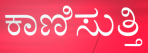
ಕಾಣಿಸುತ್ತಿ